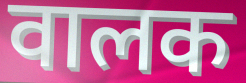
वालक